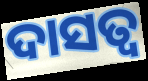
ଦାସତ୍ୱ